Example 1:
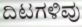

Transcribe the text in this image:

ದಿಟಗಳಿವು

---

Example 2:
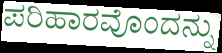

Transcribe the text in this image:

ಪರಿಹಾರವೊಂದನ್ನು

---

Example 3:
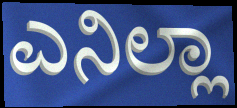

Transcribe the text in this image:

ಎನಿಲ್ಲಾ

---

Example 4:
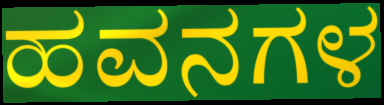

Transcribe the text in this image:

ಹವನಗಳ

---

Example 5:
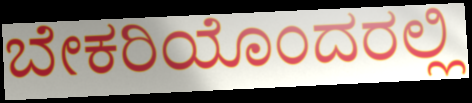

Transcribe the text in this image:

ಬೇಕರಿಯೊಂದರಲ್ಲಿ